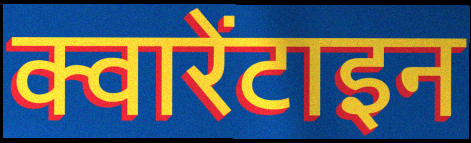
क्वारेंटाइन